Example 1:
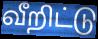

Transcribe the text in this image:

வீறிட்டு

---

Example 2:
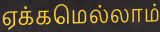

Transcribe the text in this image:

ஏக்கமெல்லாம்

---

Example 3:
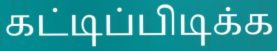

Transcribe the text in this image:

கட்டிப்பிடிக்க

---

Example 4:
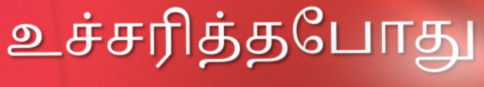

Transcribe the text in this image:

உச்சரித்தபோது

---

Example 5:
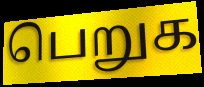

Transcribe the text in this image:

பெறுக